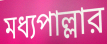
মধ্যপাল্লার